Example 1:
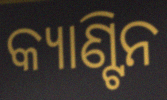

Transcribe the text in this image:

କ୍ୟାଣ୍ଟିନ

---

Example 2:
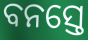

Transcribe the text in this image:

ବନସ୍ତେ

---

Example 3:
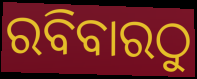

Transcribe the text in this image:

ରବିବାରଠୁ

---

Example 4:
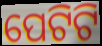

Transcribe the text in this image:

ପେଟିଟି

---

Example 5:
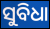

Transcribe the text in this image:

ସୁବିଧା